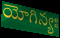
యోగిన్యః